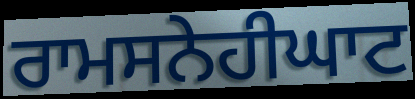
ਰਾਮਸਨੇਹੀਘਾਟ